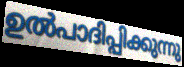
ഉൽപാദിപ്പിക്കുന്നു